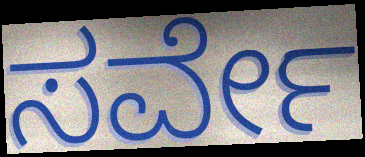
ಸರ್ವೇ